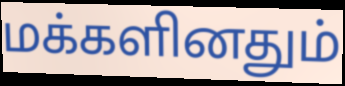
மக்களினதும்